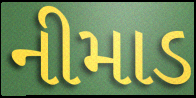
નીમાડ